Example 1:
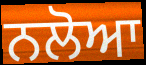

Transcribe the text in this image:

ਨਲੋਆ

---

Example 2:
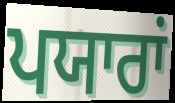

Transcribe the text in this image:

ਪਯਾਰਾਂ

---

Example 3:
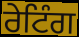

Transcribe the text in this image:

ਰੇਟਿੰਗ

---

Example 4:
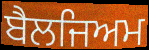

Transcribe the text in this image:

ਬੈਲਜਿਅਮ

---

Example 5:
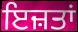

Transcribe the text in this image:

ਇਜ਼ਤਾਂ